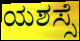
ಯಶಸ್ಸೆ